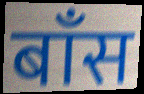
बॉंस